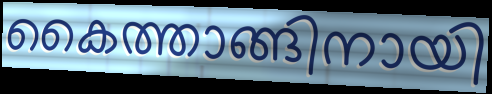
കൈത്താങ്ങിനായി